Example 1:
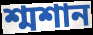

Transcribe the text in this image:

শ্মশান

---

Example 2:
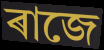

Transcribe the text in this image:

ৰাজে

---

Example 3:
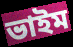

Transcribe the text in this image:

ভাইম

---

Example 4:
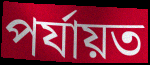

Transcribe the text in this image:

পৰ্যায়ত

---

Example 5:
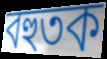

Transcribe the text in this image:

বহুতক